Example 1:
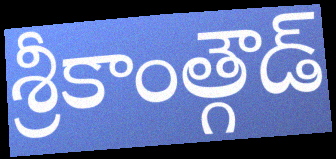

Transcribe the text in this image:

శ్రీకాంత్గౌడ్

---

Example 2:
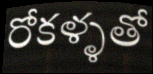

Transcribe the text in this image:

రోకళ్ళతో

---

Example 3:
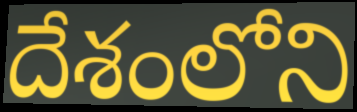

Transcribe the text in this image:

దేశంలోని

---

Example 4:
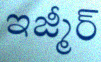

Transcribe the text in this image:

ఇజ్మీర్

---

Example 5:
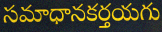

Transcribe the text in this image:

సమాధానకర్తయగు